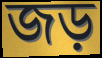
জড়